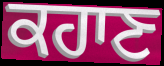
ਕਹਾਣ